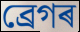
ব্ৰেগৰ